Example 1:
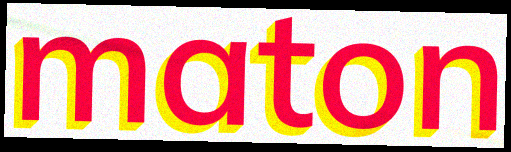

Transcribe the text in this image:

maton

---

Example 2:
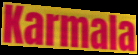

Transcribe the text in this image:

Karmala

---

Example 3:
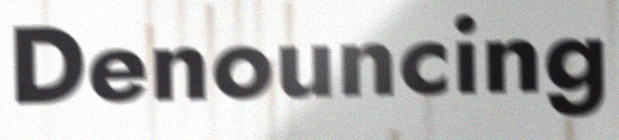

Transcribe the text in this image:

Denouncing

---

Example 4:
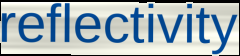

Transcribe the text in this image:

reflectivity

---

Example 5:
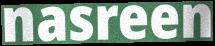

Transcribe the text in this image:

nasreen